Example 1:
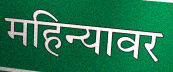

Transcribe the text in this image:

महिन्यावर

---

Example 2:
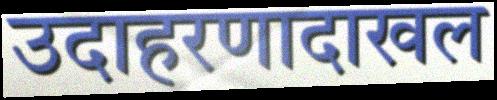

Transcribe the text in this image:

उदाहरणादाखल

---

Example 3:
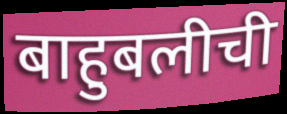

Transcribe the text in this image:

बाहुबलीची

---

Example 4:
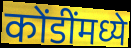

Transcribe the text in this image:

कोंडींमध्ये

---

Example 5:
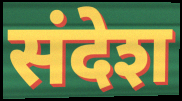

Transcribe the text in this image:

संदेश